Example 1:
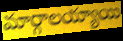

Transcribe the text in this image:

మార్గాలయ్యాయి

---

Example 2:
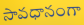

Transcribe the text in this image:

సావధానంగా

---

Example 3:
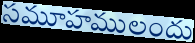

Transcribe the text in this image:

సమూహములందు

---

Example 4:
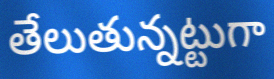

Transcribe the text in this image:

తేలుతున్నట్టుగా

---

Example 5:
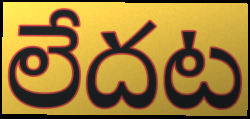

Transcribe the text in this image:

లేదట